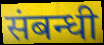
संबन्‍धी